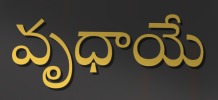
వృధాయే